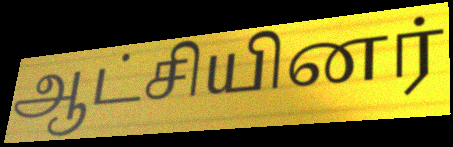
ஆட்சியினர்